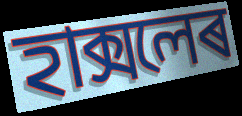
হাক্সলেৰ